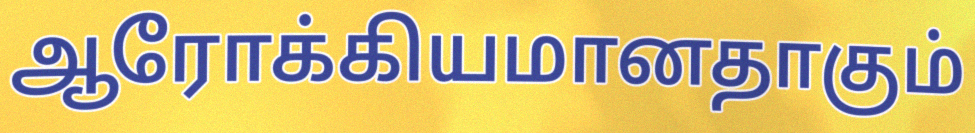
ஆரோக்கியமானதாகும்